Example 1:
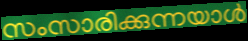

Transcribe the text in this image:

സംസാരിക്കുന്നയാൾ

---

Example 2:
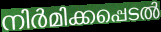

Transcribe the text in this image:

നിർമിക്കപ്പെടൽ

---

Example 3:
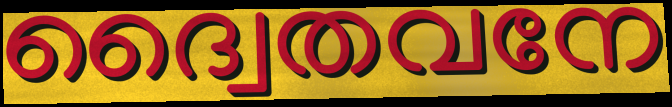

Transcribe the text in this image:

ദ്വൈതവനേ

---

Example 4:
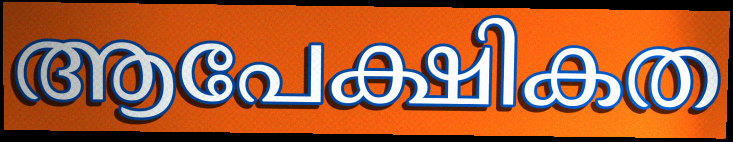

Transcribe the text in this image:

ആപേക്ഷികത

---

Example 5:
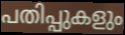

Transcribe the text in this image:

പതിപ്പുകളും